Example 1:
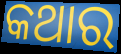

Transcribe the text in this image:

କଥାର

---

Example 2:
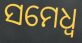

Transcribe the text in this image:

ସମେଧ୍ୱ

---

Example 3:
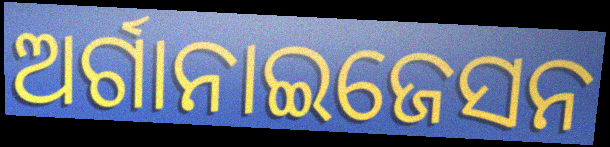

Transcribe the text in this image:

ଅର୍ଗାନାଇଜେସନ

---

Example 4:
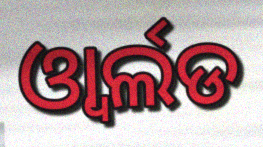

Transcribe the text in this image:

ଓ୍ବାର୍ଲଡ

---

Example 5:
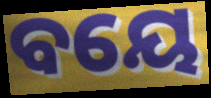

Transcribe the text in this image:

ବୟେ